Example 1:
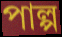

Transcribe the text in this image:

পাল্প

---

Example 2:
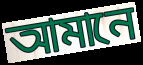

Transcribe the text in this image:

আমানে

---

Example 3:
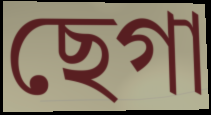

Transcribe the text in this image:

ছেগা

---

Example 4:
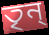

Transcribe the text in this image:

তৃন্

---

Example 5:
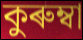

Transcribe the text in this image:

কুৰুম্বা